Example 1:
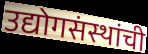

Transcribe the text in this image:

उद्योगसंस्थांची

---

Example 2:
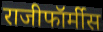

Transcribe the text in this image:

राजीफॉर्मीस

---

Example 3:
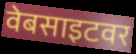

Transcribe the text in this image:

वेबसाइटवर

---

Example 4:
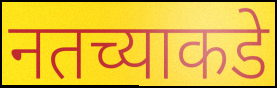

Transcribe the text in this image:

नतच्याकडे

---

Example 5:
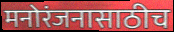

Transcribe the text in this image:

मनोरंजनासाठीच